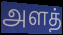
அளத்